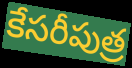
కేసరీపుత్ర